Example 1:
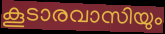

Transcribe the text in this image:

കൂടാരവാസിയും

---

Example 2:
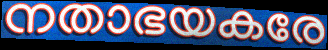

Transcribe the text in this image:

നതാഭയകരേ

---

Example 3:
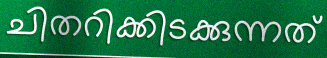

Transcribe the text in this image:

ചിതറിക്കിടക്കുന്നത്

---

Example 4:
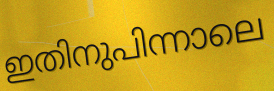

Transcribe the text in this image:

ഇതിനുപിന്നാലെ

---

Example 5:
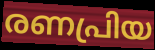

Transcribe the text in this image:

രണപ്രിയ